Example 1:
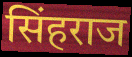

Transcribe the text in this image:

सिंहराज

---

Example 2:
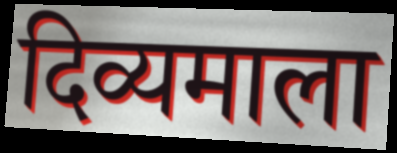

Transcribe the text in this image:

दिव्यमाला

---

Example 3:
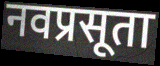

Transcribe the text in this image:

नवप्रसूता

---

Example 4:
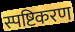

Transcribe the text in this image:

स्पष्टिकरण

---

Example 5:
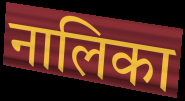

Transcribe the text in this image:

नालिका